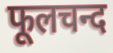
फूलचन्द